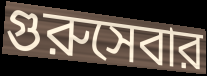
গুরুসেবার